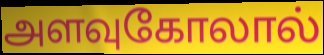
அளவுகோலால்